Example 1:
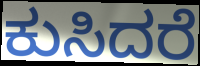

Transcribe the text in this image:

ಕುಸಿದರೆ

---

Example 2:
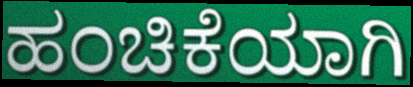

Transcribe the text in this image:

ಹಂಚಿಕೆಯಾಗಿ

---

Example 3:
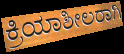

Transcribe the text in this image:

ಕ್ರಿಯಾಶೀಲರಾಗಿ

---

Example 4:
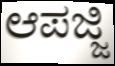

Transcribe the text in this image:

ಆಪಜ್ಜಿ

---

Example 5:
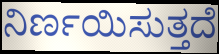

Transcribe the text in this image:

ನಿರ್ಣಯಿಸುತ್ತದೆ